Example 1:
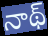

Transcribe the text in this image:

నాథ్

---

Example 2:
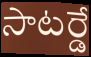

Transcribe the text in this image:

సాటర్డే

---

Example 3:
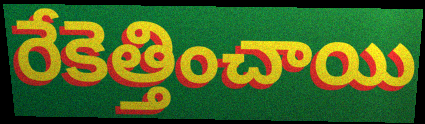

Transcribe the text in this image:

రేకెత్తించాయి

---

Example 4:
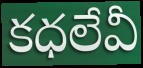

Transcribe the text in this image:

కధలేవీ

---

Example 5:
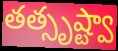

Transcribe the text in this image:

తత్సృష్ట్వా